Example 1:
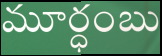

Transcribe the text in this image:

మూర్ధంబు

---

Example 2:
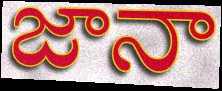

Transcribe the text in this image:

జానా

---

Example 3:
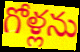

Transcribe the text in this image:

గోళ్లను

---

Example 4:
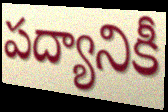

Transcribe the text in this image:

పద్యానికీ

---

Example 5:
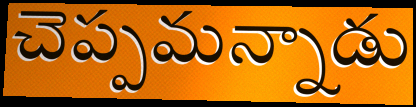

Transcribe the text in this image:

చెప్పమన్నాడు